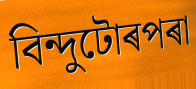
বিন্দুটোৰপৰা